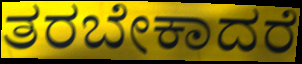
ತರಬೇಕಾದರೆ